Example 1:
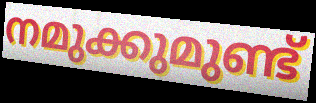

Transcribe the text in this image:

നമുക്കുമുണ്ട്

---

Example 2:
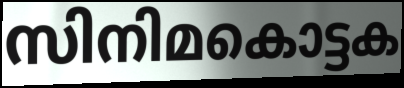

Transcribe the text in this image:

സിനിമകൊട്ടക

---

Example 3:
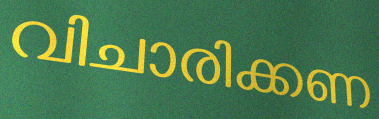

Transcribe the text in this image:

വിചാരിക്കണ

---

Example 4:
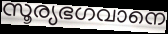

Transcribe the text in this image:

സൂര്യഭഗവാനെ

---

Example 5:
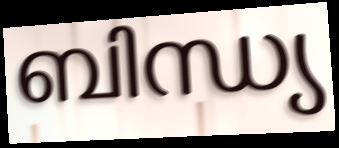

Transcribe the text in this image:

ബിന്ധ്യ